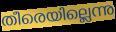
തീരെയില്ലെന്നു